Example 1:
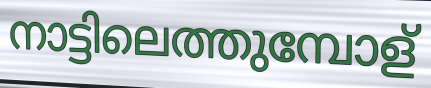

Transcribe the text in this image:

നാട്ടിലെത്തുമ്പോള്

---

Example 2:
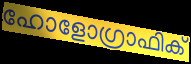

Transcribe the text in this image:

ഹോളോഗ്രാഫിക്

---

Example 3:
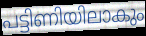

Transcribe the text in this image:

പട്ടിണിയിലാകും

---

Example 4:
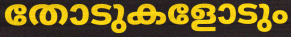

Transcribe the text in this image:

തോടുകളോടും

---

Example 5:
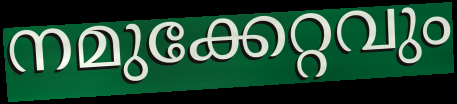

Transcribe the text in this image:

നമുക്കേറ്റവും